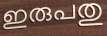
ഇരുപതു